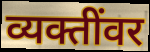
व्यक्तींवर